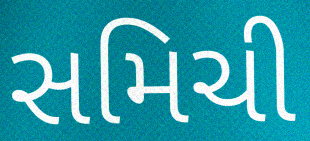
સમિચી